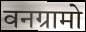
वनग्रामो